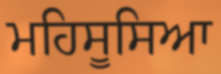
ਮਹਿਸੂਸਿਆ